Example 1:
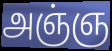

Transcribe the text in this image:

அஞ்ஞ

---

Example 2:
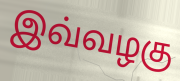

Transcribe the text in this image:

இவ்வழகு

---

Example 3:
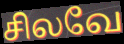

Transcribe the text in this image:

சிலவே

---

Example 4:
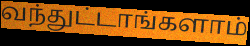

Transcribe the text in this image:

வந்துட்டாங்களாம்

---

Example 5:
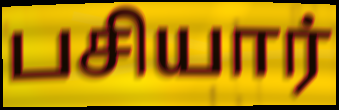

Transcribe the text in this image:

பசியார்